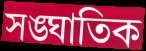
সঙ্ঘাতিক